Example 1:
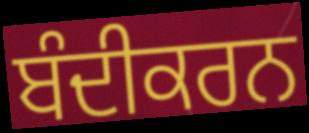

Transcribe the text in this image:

ਬੰਦੀਕਰਨ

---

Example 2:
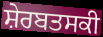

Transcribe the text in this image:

ਸ਼ੇਰਬਤਸਕੀ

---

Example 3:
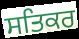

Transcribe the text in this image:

ਸਤਿਕਰ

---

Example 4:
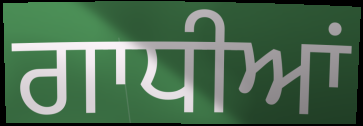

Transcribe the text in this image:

ਗਾਧੀਆਂ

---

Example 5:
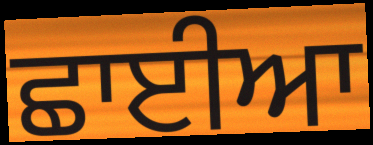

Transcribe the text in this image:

ਛਾਈਆ